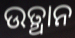
ଉତ୍ଥାନ